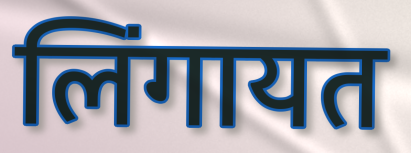
लिंगायत